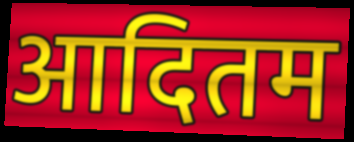
आदितम